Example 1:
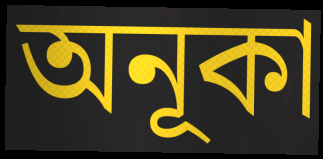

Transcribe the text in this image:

অনূকা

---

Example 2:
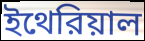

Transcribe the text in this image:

ইথেরিয়াল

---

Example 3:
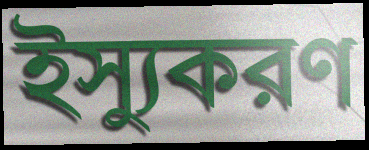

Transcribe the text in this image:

ইস্যুকরণ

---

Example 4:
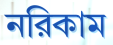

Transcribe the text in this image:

নরিকাম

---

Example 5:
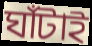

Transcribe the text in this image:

ঘাঁটাই